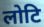
लोटि